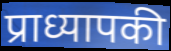
प्राध्यापकी